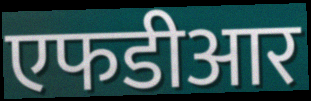
एफडीआर